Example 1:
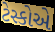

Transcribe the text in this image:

ટેસ્કોએ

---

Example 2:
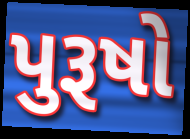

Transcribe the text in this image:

પુરૂષો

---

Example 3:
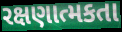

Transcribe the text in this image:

રક્ષણાત્મકતા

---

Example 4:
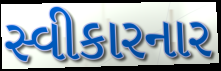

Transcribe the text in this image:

સ્વીકારનાર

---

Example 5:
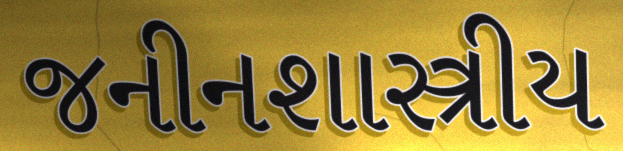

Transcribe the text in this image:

જનીનશાસ્ત્રીય